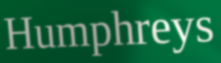
Humphreys